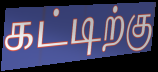
கட்டிற்கு